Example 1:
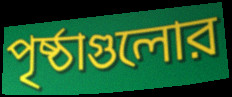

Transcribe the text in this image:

পৃষ্ঠাগুলোর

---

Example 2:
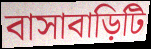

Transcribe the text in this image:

বাসাবাড়িটি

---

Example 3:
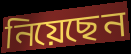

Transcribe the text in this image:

নিয়েছেন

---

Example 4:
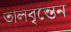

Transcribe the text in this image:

তালবৃন্তেন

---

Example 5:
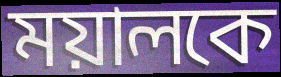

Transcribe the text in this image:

ময়ালকে